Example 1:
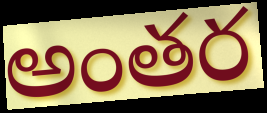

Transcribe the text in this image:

అంతర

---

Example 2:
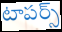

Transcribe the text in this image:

టాపర్స్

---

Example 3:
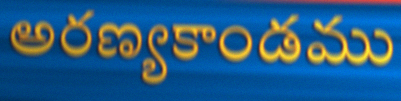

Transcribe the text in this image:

అరణ్యకాండము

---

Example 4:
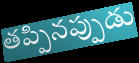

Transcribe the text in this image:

తప్పినప్పుడు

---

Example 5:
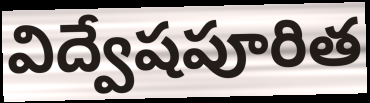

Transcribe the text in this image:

విద్వేషపూరిత